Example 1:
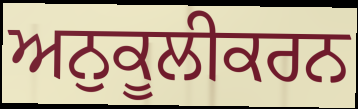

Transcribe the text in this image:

ਅਨੁਕੂਲੀਕਰਨ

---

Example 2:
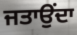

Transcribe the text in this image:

ਜਤਾਉਂਦਾ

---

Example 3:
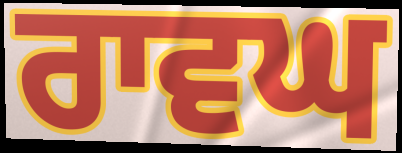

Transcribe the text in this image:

ਰਾਵਘ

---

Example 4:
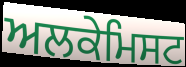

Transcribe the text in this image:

ਅਲਕੇਮਿਸਟ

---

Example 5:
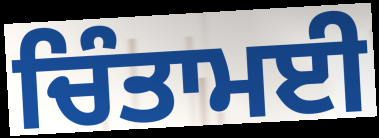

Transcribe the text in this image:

ਚਿੰਤਾਮਈ